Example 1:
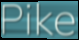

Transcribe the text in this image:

Pike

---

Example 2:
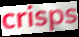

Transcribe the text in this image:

crisps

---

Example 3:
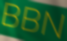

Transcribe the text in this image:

BBN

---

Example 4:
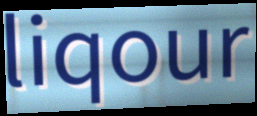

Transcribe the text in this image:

liqour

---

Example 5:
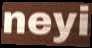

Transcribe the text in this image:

neyi